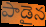
పాడైన